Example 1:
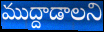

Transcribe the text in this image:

ముద్దాడాలని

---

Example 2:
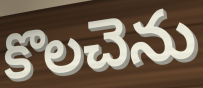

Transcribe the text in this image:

కొలచెను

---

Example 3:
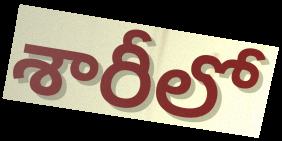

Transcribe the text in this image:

శారీలో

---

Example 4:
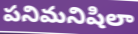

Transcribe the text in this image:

పనిమనిషిలా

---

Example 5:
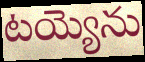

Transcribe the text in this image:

టయ్యెను